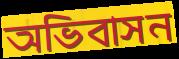
অভিবাসন